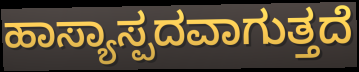
ಹಾಸ್ಯಾಸ್ಪದವಾಗುತ್ತದೆ